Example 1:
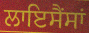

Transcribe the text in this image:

ਲਾਇਸੈਂਸਾਂ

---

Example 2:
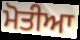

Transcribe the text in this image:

ਮੋਤੀਆ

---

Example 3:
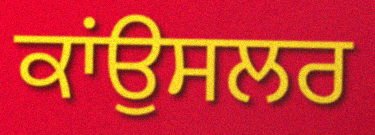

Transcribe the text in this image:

ਕਾਂਉਸਲਰ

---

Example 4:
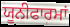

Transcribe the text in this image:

ਯੂਨੀਫਾਰਮਾਂ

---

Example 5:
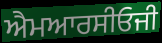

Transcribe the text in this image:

ਐਮਆਰਸੀਓਜੀ